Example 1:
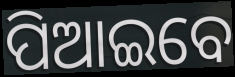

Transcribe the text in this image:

ପିଆଇବେ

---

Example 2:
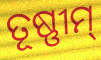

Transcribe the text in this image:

ତୂଷ୍ଣୀମ୍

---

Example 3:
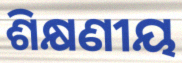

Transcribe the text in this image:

ଶିକ୍ଷଣୀୟ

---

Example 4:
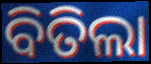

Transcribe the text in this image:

ବିତିଲା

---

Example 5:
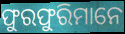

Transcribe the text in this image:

ଫୁରଫୁରିମାନେ